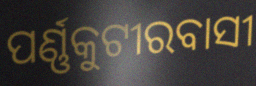
ପର୍ଣ୍ଣକୁଟୀରବାସୀ